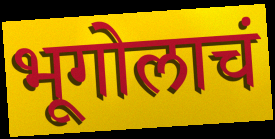
भूगोलाचं